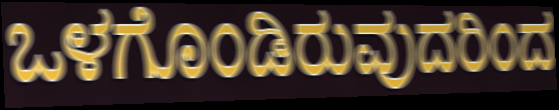
ಒಳಗೊಂಡಿರುವುದರಿಂದ